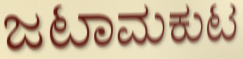
ಜಟಾಮಕುಟ